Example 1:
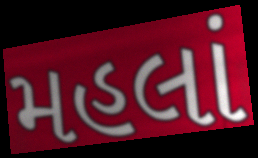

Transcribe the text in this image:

મહલાં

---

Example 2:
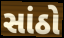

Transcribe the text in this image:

સાંઠો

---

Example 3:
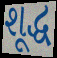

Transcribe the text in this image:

શૂદ્ધ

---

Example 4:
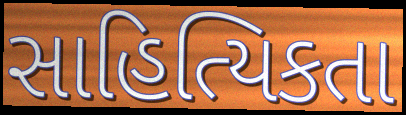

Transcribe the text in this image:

સાહિત્યિકતા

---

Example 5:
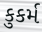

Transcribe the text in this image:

કુકર્મ